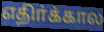
எதிர்க்கால